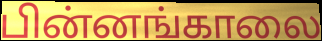
பின்னங்காலை